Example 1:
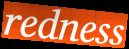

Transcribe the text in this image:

redness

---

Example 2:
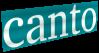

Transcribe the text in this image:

canto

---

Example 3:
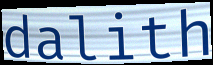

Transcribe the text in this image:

dalith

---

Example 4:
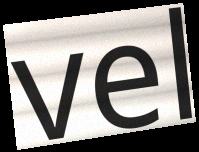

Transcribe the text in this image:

vel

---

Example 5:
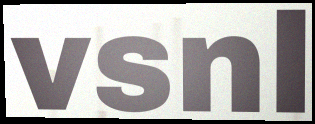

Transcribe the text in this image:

vsnl